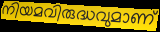
നിയമവിരുദ്ധവുമാണ്